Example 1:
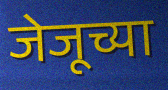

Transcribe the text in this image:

जेजूच्या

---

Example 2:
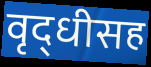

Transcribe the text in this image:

वृद्धीसह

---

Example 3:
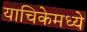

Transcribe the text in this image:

याचिकेमध्ये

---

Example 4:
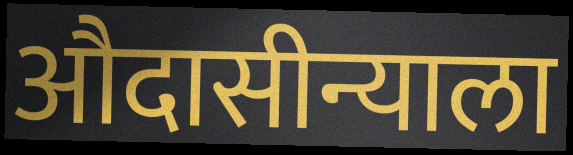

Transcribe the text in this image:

औदासीन्याला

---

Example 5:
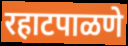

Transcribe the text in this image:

रहाटपाळणे